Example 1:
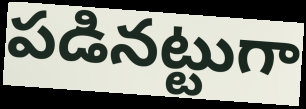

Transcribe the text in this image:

పడినట్టుగా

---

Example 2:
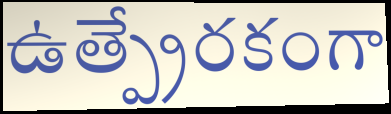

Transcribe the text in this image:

ఉత్ప్రేరకంగా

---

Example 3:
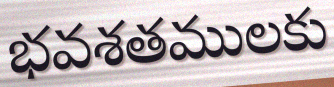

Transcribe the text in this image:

భవశతములకు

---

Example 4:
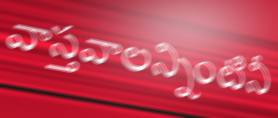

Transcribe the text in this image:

వాస్తవాలన్నింటినీ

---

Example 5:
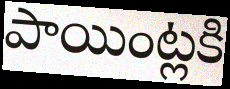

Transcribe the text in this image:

పాయింట్లకి